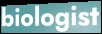
biologist